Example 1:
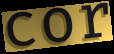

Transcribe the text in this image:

cor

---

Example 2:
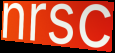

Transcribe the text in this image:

nrsc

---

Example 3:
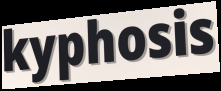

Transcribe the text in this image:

kyphosis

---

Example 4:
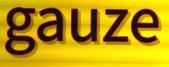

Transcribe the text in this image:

gauze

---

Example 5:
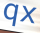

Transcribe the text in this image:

qx